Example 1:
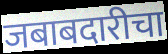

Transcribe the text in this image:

जबाबदारीचा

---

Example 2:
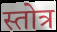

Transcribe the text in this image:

स्तोत्र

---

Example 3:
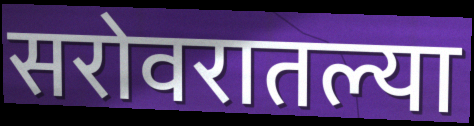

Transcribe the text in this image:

सरोवरातल्या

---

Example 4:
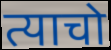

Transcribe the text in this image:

त्याचो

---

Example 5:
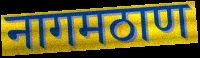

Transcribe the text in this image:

नागमठाण